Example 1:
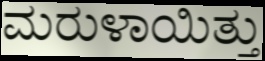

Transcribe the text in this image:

ಮರುಳಾಯಿತ್ತು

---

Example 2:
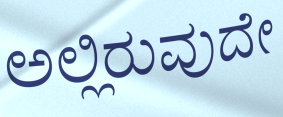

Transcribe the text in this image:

ಅಲ್ಲಿರುವುದೇ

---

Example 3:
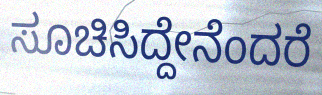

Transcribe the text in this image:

ಸೂಚಿಸಿದ್ದೇನೆಂದರೆ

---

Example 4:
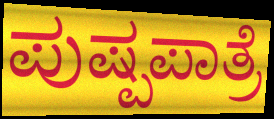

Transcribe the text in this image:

ಪುಷ್ಪಪಾತ್ರೆ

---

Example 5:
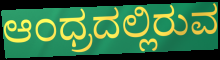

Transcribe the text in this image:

ಆಂಧ್ರದಲ್ಲಿರುವ